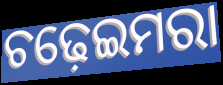
ଚଢ଼େଇମରା